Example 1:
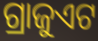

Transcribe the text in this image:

ଗ୍ରାଜୁଏଟ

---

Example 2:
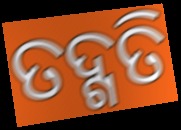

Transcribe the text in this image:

ତଦ୍ଗତି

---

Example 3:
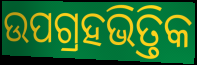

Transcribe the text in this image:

ଉପଗ୍ରହଭିତ୍ତିକ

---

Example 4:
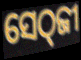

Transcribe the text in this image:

ସେଠ୍‌ଜୀ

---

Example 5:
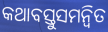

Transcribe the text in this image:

କଥାବସ୍ତୁସମନ୍ୱିତ